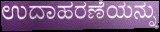
ಉದಾಹರಣೆಯನ್ನು